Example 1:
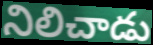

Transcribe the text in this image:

నిలిచాడు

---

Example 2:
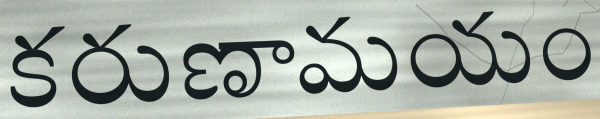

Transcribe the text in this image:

కరుణామయం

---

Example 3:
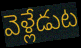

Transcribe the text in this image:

వెళ్లేడుట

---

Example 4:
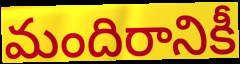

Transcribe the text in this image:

మందిరానికీ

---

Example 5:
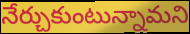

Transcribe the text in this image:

నేర్చుకుంటున్నామని